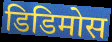
डिडिमोस